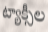
ట్యాక్సీల